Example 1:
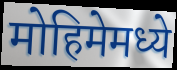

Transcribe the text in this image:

मोहिमेमध्ये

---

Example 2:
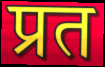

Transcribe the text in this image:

प्रत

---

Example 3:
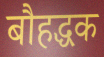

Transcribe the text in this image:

बौहद्धक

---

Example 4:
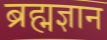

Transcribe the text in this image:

ब्रह्मज्ञान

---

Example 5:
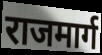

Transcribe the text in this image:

राजमार्ग